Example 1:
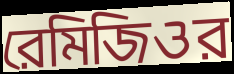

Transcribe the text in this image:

রেমিজিওর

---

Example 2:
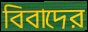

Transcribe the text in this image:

বিবাদের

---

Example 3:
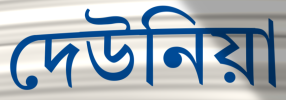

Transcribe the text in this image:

দেউনিয়া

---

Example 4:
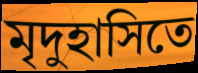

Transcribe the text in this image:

মৃদুহাসিতে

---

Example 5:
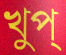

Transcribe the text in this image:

খুপ্